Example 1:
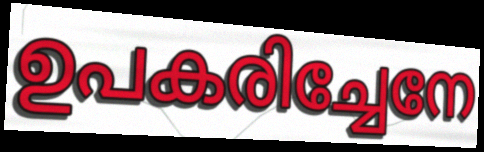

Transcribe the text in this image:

ഉപകരിച്ചേനേ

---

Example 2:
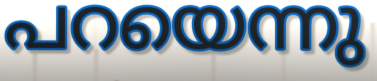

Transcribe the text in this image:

പറയെന്നു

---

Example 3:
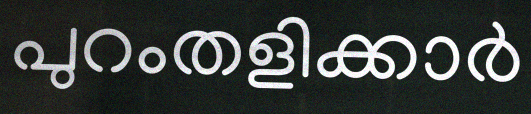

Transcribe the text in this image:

പുറംതളിക്കാർ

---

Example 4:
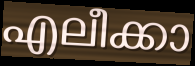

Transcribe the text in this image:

എലീക്കാ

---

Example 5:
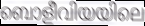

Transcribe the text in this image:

ബൊളീവിയയിലെ